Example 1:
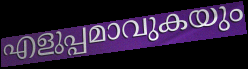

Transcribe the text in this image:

എളുപ്പമാവുകയും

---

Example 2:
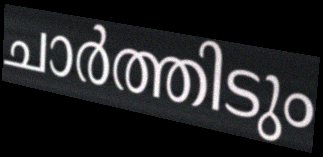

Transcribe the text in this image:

ചാർത്തിടും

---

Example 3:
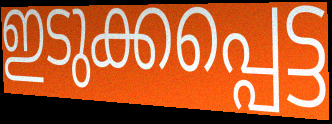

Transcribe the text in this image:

ഇടുക്കപ്പെട്ട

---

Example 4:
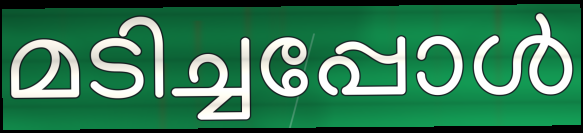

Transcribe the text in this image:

മടിച്ചപ്പോൾ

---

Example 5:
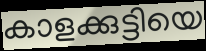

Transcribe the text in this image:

കാളക്കുട്ടിയെ